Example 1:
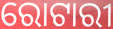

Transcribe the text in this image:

ରୋଟାରୀ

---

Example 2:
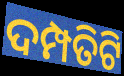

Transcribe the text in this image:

ଦମ୍ପତିଟି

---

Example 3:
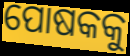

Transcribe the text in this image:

ପୋଷକକୁ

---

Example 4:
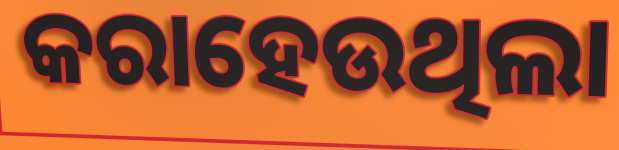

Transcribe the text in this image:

କରାହେଉଥିଲା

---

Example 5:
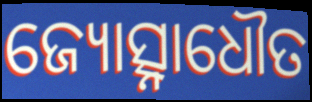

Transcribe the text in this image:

ଜ୍ୟୋତ୍ସ୍ନାଧୌତ